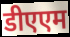
डीएएम